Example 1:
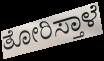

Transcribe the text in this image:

ತೋರಿಸ್ತಾಳೆ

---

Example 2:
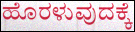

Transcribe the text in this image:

ಹೊರಳುವುದಕ್ಕೆ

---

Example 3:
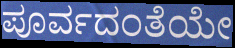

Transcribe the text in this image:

ಪೂರ್ವದಂತೆಯೇ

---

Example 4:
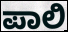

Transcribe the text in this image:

ಪಾಲಿ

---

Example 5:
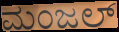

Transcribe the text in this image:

ಮಂಜಲ್